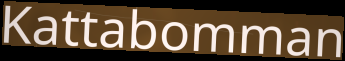
Kattabomman